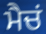
ਮੈਚਂ